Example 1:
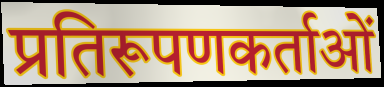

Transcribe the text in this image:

प्रतिरूपणकर्ताओं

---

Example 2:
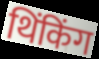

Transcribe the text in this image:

थिंकिंग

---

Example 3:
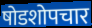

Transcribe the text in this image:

षोडशोपचार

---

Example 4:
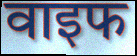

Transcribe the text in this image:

वाइफ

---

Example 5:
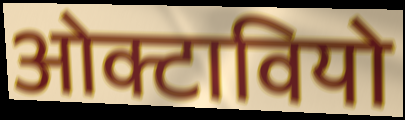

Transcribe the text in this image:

ओक्टावियो